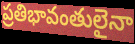
ప్రతిభావంతులైనా